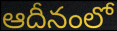
ఆదీనంలో